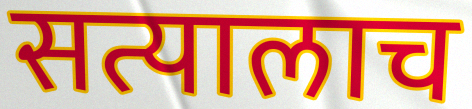
सत्यालाच